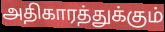
அதிகாரத்துக்கும்